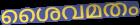
ശൈവമതം